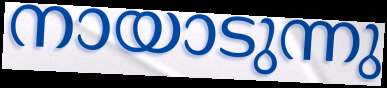
നായാടുന്നു